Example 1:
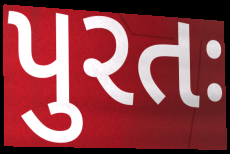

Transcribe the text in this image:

પુરતઃ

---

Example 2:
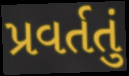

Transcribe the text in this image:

પ્રવર્તતું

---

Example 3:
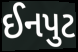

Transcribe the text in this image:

ઈનપુટ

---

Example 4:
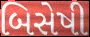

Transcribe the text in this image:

બિસેષી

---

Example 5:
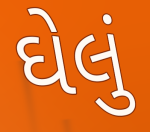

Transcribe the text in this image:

ઘેલું